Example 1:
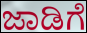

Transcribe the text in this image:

ಜಾಡಿಗೆ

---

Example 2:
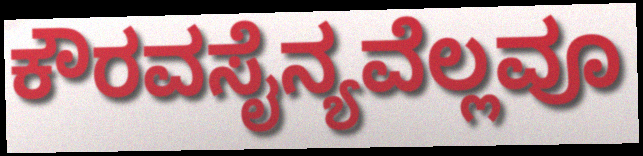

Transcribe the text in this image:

ಕೌರವಸೈನ್ಯವೆಲ್ಲವೂ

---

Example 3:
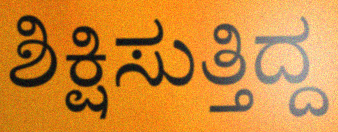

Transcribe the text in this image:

ಶಿಕ್ಷಿಸುತ್ತಿದ್ದ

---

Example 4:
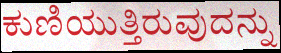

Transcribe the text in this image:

ಕುಣಿಯುತ್ತಿರುವುದನ್ನು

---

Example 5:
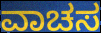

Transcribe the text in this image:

ವಾಚಸ